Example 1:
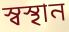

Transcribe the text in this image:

স্বস্থান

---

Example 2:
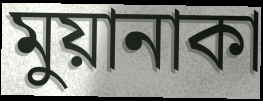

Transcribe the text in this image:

মুয়ানাকা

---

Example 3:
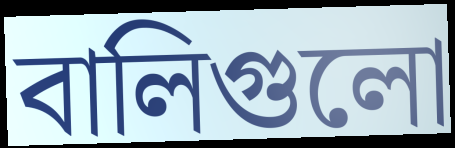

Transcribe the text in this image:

বালিগুলো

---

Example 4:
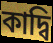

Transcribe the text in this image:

কাদ্বি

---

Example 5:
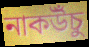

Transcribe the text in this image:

নাকউঁচু